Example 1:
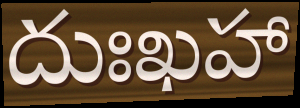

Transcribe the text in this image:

దుఃఖహా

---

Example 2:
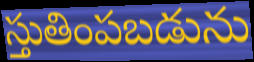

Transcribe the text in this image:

స్తుతింపబడును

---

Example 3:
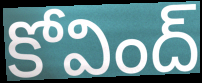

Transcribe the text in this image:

కోవింద్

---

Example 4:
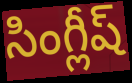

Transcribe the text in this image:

సింగ్లీష్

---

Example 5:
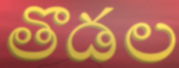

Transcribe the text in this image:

తొడల